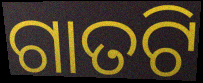
ଗାତଟି